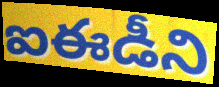
ఐఈడీని